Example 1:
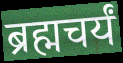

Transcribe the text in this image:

ब्रह्मचर्यं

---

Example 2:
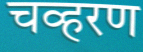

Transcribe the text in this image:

चव्हरण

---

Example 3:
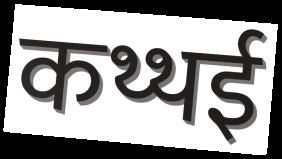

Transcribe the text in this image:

कथ्थई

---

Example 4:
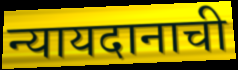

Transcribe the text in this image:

न्यायदानाची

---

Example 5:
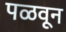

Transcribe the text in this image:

पळवून